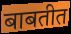
बाबतीत